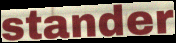
stander